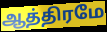
ஆத்திரமே